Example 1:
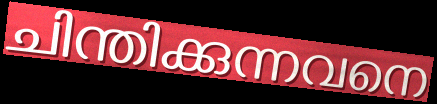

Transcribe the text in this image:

ചിന്തിക്കുന്നവനെ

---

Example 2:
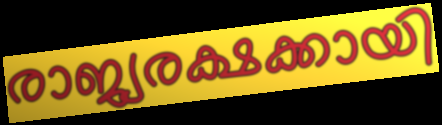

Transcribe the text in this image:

രാജ്യരക്ഷക്കായി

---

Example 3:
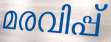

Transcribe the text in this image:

മരവിപ്പ്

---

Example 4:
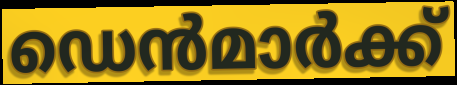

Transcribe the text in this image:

ഡെൻമാർക്ക്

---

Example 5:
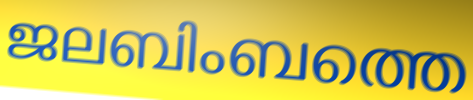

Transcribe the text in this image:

ജലബിംബത്തെ